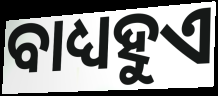
ବାଧ୍ୟହୁଏ